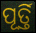
ପୂର୍ତ୍ତି